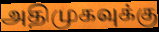
அதிமுகவுக்கு